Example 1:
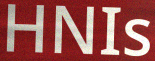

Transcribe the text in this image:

HNIs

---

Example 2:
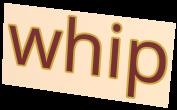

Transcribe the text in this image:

whip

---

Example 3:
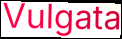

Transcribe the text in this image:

Vulgata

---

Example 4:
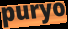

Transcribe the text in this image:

puryo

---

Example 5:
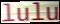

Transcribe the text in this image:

lulu